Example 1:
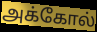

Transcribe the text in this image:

அக்கோல்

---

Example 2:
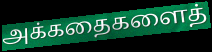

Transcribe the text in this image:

அக்கதைகளைத்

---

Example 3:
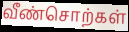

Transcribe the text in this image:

வீண்சொற்கள்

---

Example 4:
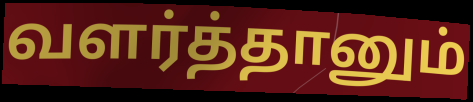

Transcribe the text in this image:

வளர்த்தானும்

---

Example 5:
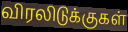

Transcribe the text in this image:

விரலிடுக்குகள்